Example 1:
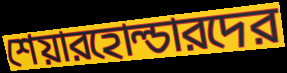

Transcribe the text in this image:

শেয়ারহোল্ডারদের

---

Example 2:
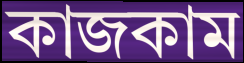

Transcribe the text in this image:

কাজকাম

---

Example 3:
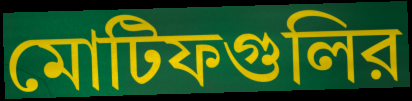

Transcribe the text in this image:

মোটিফগুলির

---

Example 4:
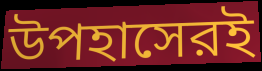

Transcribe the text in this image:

উপহাসেরই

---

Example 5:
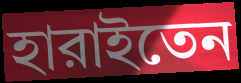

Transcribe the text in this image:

হারাইতেন